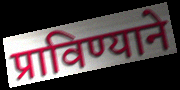
प्राविण्याने